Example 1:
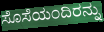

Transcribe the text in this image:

ಸೊಸೆಯಂದಿರನ್ನು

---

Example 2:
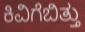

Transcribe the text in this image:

ಕಿವಿಗೆಬಿತ್ತು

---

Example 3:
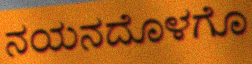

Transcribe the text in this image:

ನಯನದೊಳಗೊ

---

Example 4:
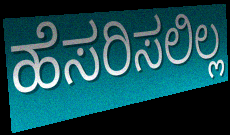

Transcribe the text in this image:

ಹೆಸರಿಸಲಿಲ್ಲ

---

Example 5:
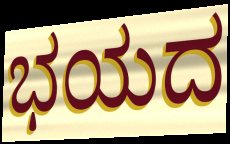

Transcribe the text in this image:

ಭಯದ